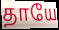
தாயே